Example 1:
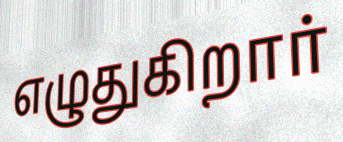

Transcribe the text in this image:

எழுதுகிறார்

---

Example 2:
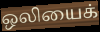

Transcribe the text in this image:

ஒலியைக்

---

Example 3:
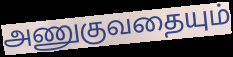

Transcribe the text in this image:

அணுகுவதையும்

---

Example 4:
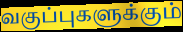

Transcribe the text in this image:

வகுப்புகளுக்கும்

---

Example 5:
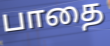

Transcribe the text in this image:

பாதை